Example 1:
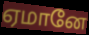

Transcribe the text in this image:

ஏமானே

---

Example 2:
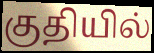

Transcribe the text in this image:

குதியில்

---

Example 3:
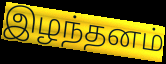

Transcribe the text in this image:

இழந்தனம்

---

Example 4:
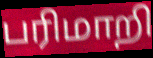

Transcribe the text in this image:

பரிமாறி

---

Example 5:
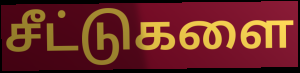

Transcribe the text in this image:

சீட்டுகளை